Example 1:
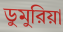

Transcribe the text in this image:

ডুমুরিয়া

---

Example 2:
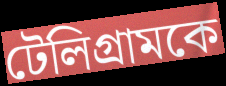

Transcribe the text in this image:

টেলিগ্রামকে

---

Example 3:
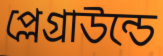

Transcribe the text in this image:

প্লেগ্রাউন্ডে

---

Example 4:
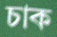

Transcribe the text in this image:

চাক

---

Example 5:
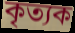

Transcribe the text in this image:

কৃত্যক